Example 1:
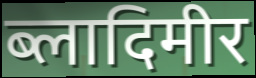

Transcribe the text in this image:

ब्लादिमीर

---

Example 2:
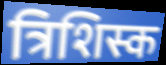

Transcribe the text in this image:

त्रिशिस्क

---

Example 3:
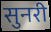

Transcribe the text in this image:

सुनरी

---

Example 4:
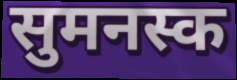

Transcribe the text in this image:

सुमनस्क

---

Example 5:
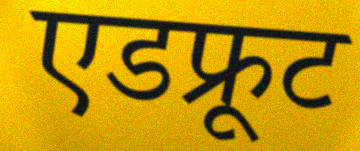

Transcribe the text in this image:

एडफ्रूट